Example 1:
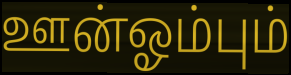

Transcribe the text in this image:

ஊன்ஓம்பும்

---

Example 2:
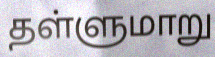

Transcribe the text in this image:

தள்ளுமாறு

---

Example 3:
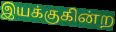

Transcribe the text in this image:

இயக்குகின்ற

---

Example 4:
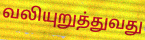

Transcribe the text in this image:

வலியுறுத்துவது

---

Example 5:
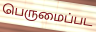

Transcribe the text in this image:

பெருமைப்பட